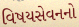
વિષયસેવનનો